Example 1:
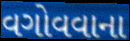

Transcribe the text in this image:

વગોવવાના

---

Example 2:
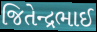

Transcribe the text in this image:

જિતેન્દ્રભાઈ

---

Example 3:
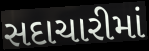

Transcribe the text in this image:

સદાચારીમાં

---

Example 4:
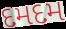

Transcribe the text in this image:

દમદમ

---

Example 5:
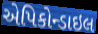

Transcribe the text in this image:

એપિકોન્ડાઇલ